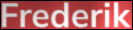
Frederik